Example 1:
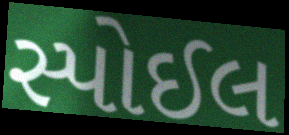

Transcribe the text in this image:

સ્પોઈલ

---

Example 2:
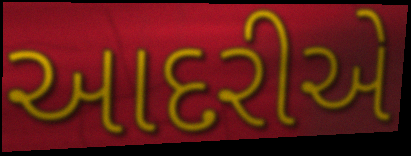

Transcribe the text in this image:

આદરીએ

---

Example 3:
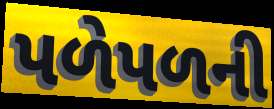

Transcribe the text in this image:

પળેપળની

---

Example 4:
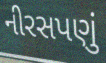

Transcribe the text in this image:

નીરસપણું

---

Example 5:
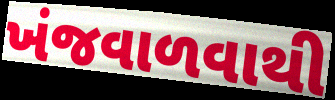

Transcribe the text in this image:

ખંજવાળવાથી